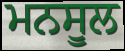
ਮਨਸੂਲ